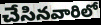
చేసినవారిలో